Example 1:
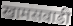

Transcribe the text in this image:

खामसवाडी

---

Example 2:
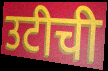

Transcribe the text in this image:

उटीची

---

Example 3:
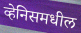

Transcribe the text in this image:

व्हेनिसमधील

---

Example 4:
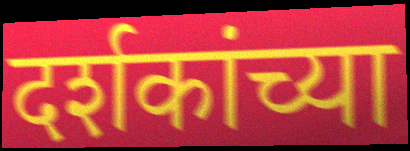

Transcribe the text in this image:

दर्शकांच्या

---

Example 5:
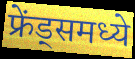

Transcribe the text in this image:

फ्रेंड्समध्ये